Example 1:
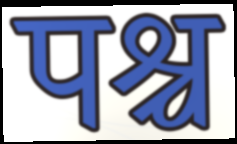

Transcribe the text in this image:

पश्च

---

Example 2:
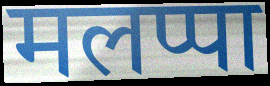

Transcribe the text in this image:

मलप्पा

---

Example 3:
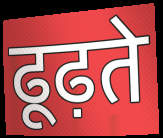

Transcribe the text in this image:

ढूढ़ते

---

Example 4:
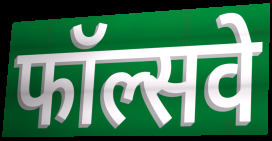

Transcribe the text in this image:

फॉल्सवे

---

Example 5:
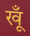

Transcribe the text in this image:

खूँ